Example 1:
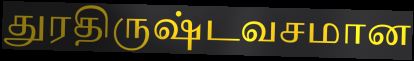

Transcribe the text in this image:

துரதிருஷ்டவசமான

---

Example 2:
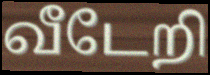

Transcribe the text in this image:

வீடேறி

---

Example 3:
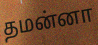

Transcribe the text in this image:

தமன்னா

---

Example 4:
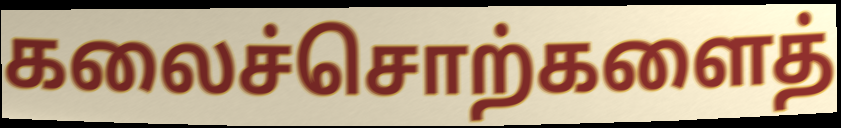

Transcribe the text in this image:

கலைச்சொற்களைத்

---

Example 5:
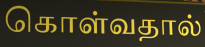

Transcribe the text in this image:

கொள்வதால்